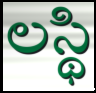
లస్థి